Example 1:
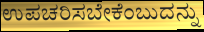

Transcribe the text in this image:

ಉಪಚರಿಸಬೇಕೆಂಬುದನ್ನು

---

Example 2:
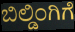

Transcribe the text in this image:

ಬಿಲ್ಡಿಂಗಿಗೆ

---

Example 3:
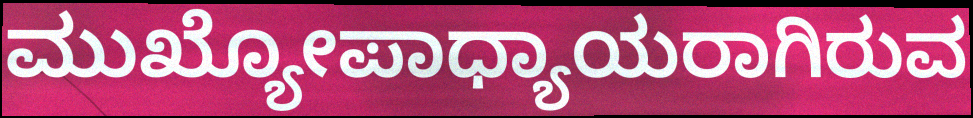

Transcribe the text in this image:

ಮುಖ್ಯೋಪಾಧ್ಯಾಯರಾಗಿರುವ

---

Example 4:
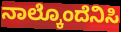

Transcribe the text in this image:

ನಾಲ್ಕೊಂದೆನಿಸಿ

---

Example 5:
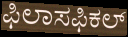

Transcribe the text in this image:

ಫಿಲಾಸಫಿಕಲ್